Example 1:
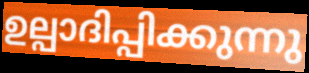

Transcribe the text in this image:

ഉല്പാദിപ്പിക്കുന്നു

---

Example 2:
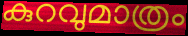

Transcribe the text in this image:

കുറവുമാത്രം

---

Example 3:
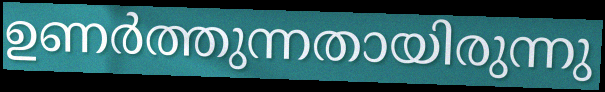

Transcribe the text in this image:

ഉണർത്തുന്നതായിരുന്നു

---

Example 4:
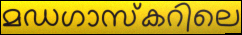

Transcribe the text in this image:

മഡഗാസ്കറിലെ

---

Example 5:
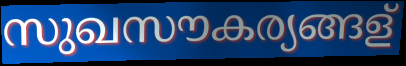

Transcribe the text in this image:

സുഖസൗകര്യങ്ങള്